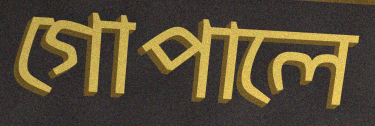
গোপালে